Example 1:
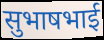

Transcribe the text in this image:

सुभाषभाई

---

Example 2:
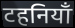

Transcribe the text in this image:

टहनियाँ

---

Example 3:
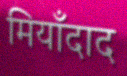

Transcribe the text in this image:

मियाँदाद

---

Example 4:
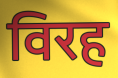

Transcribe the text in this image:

विरह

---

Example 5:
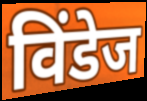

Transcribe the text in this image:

विंडेज